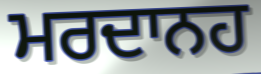
ਮਰਦਾਨਹ